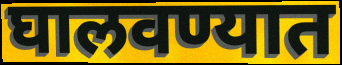
घालवण्यात